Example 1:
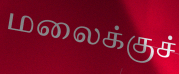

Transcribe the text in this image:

மலைக்குச்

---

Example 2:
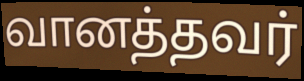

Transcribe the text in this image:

வானத்தவர்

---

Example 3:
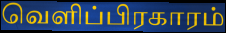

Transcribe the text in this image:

வெளிப்பிரகாரம்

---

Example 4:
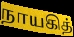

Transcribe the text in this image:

நாயகித்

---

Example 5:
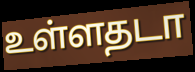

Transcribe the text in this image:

உள்ளதடா